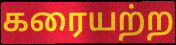
கரையற்ற